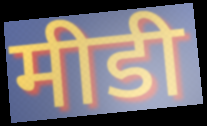
मीडी